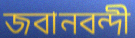
জবানবন্দী